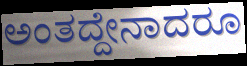
ಅಂತದ್ದೇನಾದರೂ